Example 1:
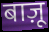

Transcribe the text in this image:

बाज़ू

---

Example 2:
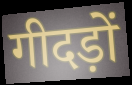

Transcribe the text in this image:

गीदड़ों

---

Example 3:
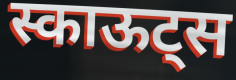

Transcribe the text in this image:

स्काऊट्स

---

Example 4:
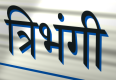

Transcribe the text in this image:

त्रिभंगी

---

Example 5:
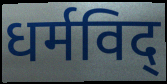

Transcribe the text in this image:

धर्मविद्